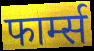
फार्म्स